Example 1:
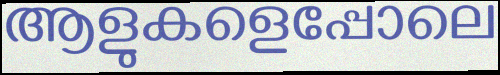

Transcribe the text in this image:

ആളുകളെപ്പോലെ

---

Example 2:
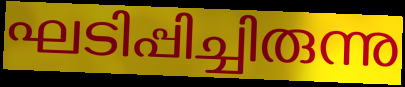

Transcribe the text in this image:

ഘടിപ്പിച്ചിരുന്നു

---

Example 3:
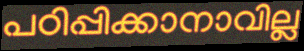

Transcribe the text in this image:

പഠിപ്പിക്കാനാവില്ല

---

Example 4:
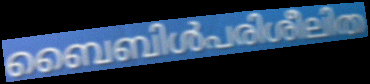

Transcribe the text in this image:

ബൈബിൾപരിശീലിത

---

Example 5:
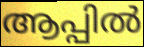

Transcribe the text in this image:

ആപ്പിൽ